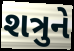
શત્રુને